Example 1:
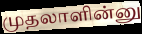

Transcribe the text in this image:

முதலாளின்னு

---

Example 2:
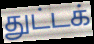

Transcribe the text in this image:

துட்டக்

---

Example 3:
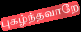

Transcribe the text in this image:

புகழ்ந்தவாறே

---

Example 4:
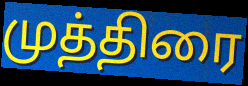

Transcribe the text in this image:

முத்திரை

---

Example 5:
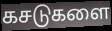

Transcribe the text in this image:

கசடுகளை